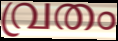
വ്രതം